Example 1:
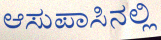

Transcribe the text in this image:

ಆಸುಪಾಸಿನಲ್ಲಿ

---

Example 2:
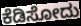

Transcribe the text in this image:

ಕೆಡಿಸೋದು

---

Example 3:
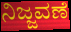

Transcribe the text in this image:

ನಿಜ್ಜವಣೆ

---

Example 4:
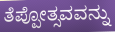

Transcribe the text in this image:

ತೆಪ್ಪೋತ್ಸವವನ್ನು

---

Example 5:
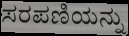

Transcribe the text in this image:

ಸರಪಣಿಯನ್ನು